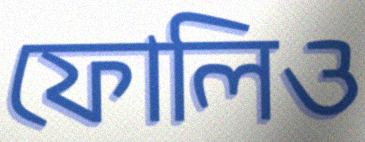
ফোলিও